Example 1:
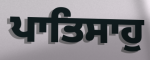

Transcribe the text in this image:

ਪਾਤਿਸਾਹੁ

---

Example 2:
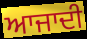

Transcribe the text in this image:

ਆਜਾਦੀ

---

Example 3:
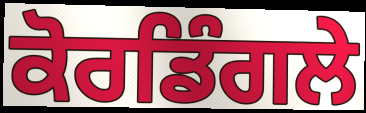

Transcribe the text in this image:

ਕੋਰਡਿੰਗਲੇ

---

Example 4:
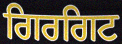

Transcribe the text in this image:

ਗਿਰਗਿਟ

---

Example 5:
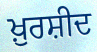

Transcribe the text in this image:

ਖ਼ੁਰਸ਼ੀਦ